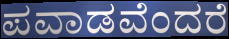
ಪವಾಡವೆಂದರೆ